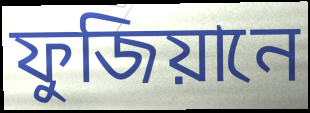
ফুজিয়ানে